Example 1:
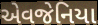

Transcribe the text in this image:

એવજેનિયા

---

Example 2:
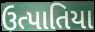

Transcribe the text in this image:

ઉત્પાતિયા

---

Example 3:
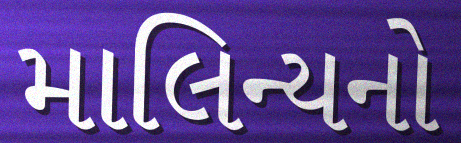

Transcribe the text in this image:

માલિન્યનો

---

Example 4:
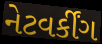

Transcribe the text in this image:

નેટવર્કીંગ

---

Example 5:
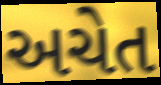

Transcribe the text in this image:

અચેત